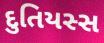
દુતિયસ્સ